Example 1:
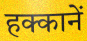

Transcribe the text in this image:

हक्कानें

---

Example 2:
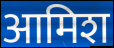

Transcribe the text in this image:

आमिश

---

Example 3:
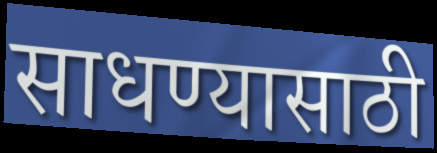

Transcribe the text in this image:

साधण्यासाठी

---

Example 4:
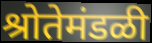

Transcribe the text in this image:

श्रोतेमंडळी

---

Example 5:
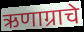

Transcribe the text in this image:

ऋणाग्राचे